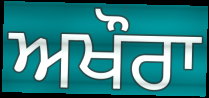
ਅਖੌਰਾ